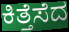
ಕಿತ್ತೆಸೆದ